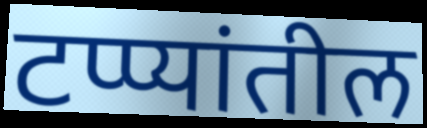
टप्प्यांतील